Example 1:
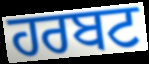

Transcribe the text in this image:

ਹਰਬਟ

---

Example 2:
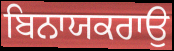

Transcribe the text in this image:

ਬਿਨਾਯਕਰਾਉ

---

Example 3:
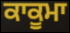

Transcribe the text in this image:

ਕਾਕੂਮਾ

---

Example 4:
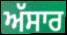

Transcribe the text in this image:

ਅੱਸਾਰ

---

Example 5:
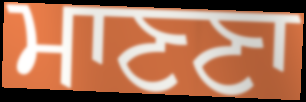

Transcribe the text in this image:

ਮਾਣਣਾ